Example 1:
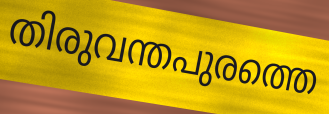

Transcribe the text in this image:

തിരുവന്തപുരത്തെ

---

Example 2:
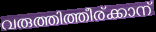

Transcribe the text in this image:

വരുത്തിത്തീര്ക്കാന്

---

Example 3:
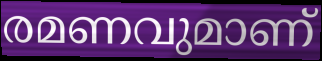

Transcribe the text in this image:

രമണവുമാണ്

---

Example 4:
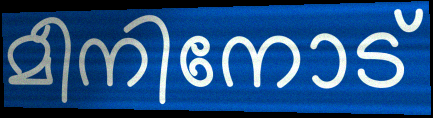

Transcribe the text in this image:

മീനിനോട്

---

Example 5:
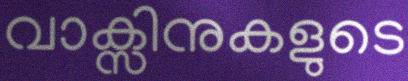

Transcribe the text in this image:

വാക്സിനുകളുടെ